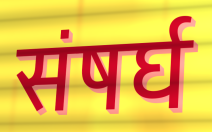
संषर्घ